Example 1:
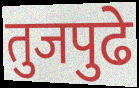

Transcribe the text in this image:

तुजपुढे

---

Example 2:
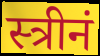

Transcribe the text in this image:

स्त्रीनं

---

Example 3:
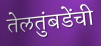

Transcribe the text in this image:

तेलतुंबडेंची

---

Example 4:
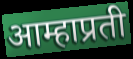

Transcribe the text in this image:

आम्हाप्रती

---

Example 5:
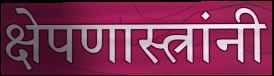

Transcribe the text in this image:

क्षेपणास्त्रांनी